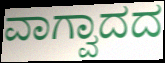
ವಾಗ್ವಾದದ